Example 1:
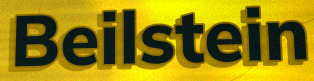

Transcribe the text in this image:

Beilstein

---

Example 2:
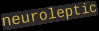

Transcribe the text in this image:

neuroleptic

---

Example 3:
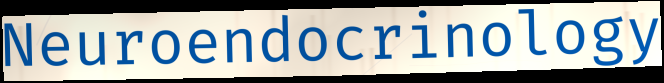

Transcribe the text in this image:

Neuroendocrinology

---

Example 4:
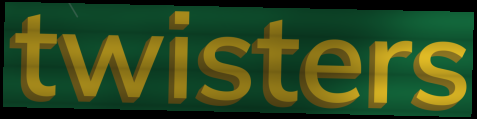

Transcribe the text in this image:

twisters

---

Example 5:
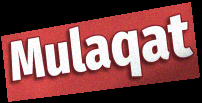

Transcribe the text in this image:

Mulaqat